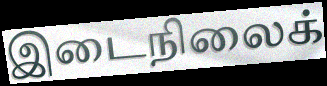
இடைநிலைக்